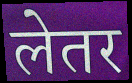
लेतर